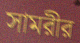
সামরীর